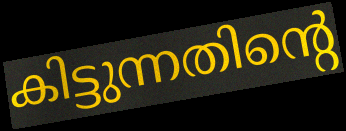
കിട്ടുന്നതിന്റെ